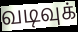
வடிவுக்